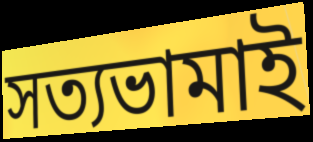
সত্যভামাই